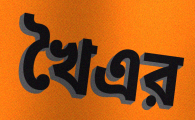
খৈএর